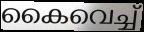
കൈവെച്ച്